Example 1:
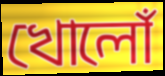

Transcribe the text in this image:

খোলোঁ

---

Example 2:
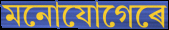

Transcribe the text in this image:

মনোযোগেৰে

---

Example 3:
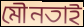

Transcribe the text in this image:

মৌনতাই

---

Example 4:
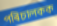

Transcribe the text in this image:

পৰিচালকক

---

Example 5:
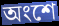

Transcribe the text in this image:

অংশে